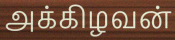
அக்கிழவன்